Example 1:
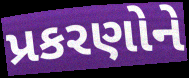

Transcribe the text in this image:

પ્રકરણોને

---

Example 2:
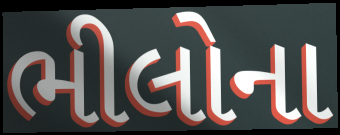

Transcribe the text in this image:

ભીલોના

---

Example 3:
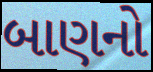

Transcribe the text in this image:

બાણનો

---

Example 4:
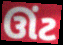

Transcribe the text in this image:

ઊંટ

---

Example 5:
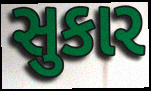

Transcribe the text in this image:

સુકાર